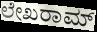
ಲೇಖರಾಮ್